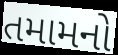
તમામનો